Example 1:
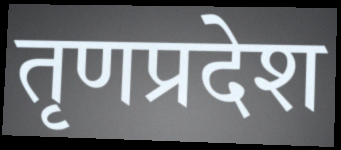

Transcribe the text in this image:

तृणप्रदेश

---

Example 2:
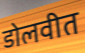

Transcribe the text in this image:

डोलवीत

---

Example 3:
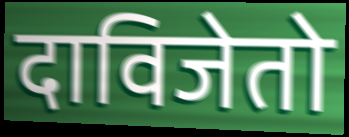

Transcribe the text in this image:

दाविजेतो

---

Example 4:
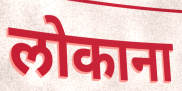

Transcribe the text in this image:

लोकाना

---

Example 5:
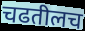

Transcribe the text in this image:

चढतीलच